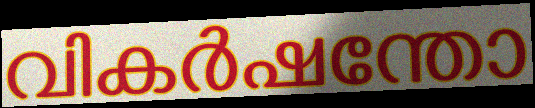
വികർഷന്തോ